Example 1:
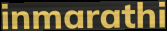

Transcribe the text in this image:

inmarathi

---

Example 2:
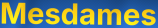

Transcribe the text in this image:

Mesdames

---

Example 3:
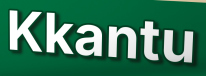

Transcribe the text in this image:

Kkantu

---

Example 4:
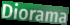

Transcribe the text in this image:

Diorama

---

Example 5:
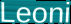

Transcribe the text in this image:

Leoni